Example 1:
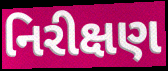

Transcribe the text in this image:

નિરીક્ષણ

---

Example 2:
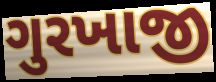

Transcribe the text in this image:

ગુરખાજી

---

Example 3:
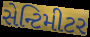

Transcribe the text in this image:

સેન્ટિમીટર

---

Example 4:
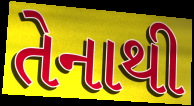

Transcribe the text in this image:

તેનાથી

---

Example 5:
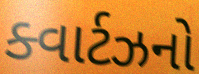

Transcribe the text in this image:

ક્વાર્ટઝનો